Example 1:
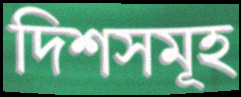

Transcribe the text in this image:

দিশসমূহ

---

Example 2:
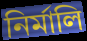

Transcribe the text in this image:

নিৰ্মালি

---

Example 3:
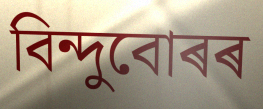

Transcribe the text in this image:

বিন্দুবোৰৰ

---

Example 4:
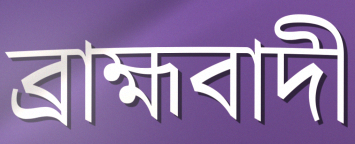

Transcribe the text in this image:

ব্ৰাহ্মবাদী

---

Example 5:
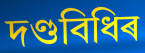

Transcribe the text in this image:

দণ্ডবিধিৰ